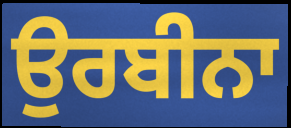
ਉਰਬੀਨਾ